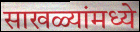
साखळ्यांमध्ये